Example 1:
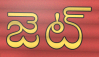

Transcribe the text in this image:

జెట్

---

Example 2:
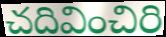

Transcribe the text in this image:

చదివించిరి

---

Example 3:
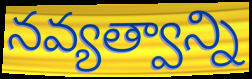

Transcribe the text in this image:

నవ్యత్వాన్ని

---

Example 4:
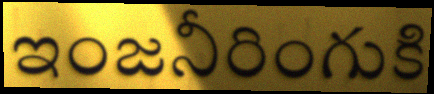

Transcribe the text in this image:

ఇంజనీరింగుకి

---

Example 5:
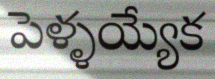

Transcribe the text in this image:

పెళ్ళయ్యేక